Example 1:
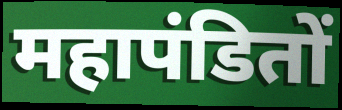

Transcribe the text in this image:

महापंडितों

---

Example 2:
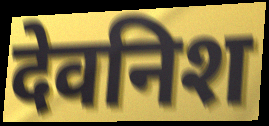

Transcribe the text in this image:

देवनिश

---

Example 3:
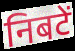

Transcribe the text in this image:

निबटें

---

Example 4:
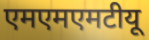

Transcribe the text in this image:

एमएमएमटीयू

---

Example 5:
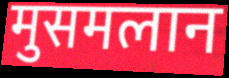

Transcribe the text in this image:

मुसमलान